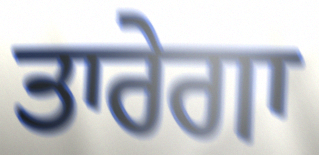
ਤਾਰੇਗਾ